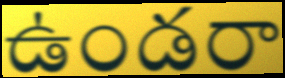
ఉండరా